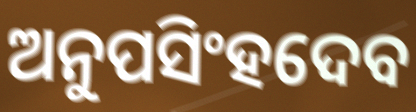
ଅନୁପସିଂହଦେବ